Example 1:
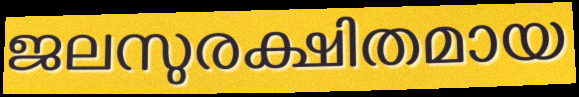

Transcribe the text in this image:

ജലസുരക്ഷിതമായ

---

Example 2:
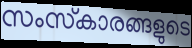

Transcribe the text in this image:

സംസ്‌കാരങ്ങളുടെ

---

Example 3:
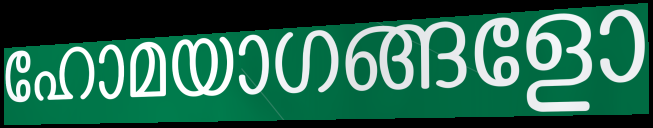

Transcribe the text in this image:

ഹോമയാഗങ്ങളോ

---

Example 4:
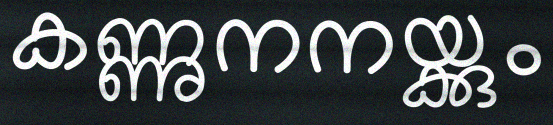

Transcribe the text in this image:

കണ്ണുനനയ്ക്കും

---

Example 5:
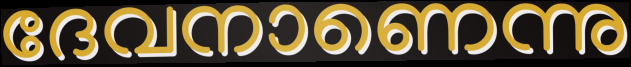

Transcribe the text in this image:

ദേവനാണെന്നു